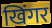
खिंगर